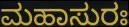
ಮಹಾಸುರಃ